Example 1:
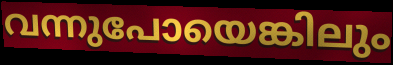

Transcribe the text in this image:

വന്നുപോയെങ്കിലും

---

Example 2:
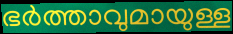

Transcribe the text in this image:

ഭർത്താവുമായുള്ള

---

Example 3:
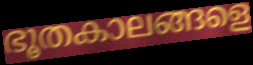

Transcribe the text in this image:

ഭൂതകാലങ്ങളെ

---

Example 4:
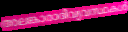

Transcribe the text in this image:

അലങ്കാരാദിവ്യവസ്ഥകൾ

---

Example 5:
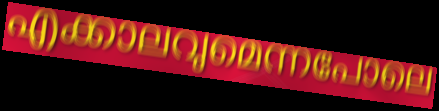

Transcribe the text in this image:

എക്കാലവുമെന്നപോലെ